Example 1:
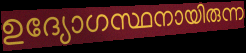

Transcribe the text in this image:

ഉദ്യോഗസ്ഥനായിരുന്ന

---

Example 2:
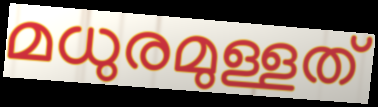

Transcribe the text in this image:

മധുരമുള്ളത്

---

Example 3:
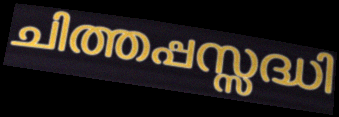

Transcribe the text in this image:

ചിത്തപ്പസ്സദ്ധി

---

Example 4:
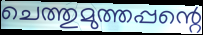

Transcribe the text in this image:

ചെത്തുമുത്തപ്പന്റെ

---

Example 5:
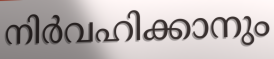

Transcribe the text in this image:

നിർവഹിക്കാനും